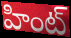
హింట్